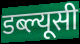
डब्ल्यूसी